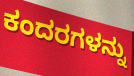
ಕಂದರಗಳನ್ನು